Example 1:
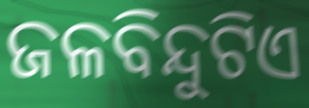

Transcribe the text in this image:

ଜଳବିନ୍ଦୁଟିଏ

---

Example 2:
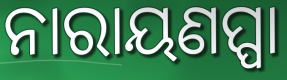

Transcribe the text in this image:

ନାରାୟଣପ୍ପା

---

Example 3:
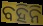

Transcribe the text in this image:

ବହିନି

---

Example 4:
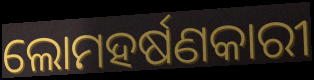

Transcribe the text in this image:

ଲୋମହର୍ଷଣକାରୀ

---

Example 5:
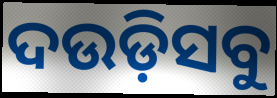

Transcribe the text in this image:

ଦଉଡ଼ିସବୁ